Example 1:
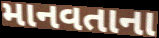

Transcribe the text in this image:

માનવતાના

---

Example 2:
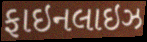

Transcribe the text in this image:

ફાઇનલાઇઝ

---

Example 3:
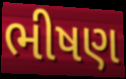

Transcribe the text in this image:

ભીષણ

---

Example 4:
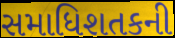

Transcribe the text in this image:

સમાધિશતકની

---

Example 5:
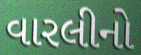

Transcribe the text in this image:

વારલીનો